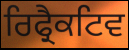
ਰਿਫ੍ਰੈਕਟਿਵ